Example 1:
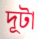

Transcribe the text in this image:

দূটা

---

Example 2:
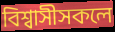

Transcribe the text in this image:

বিশ্বাসীসকলে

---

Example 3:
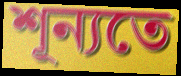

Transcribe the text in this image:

শূন্যতে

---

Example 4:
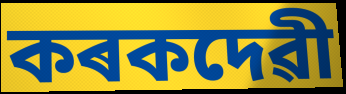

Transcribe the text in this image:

কৰকদেৱী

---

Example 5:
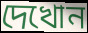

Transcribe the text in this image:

দেখোন